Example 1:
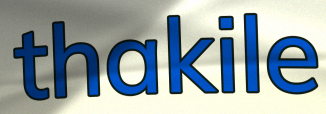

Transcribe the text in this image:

thakile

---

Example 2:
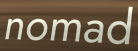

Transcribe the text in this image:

nomad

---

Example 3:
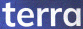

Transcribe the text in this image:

terra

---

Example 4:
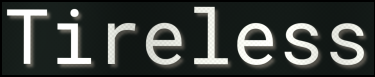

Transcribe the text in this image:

Tireless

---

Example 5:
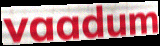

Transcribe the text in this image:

vaadum